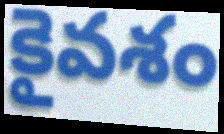
కైవశం